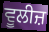
ਵੂਲੀਜ਼